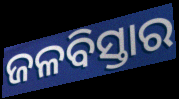
ଜଳବିସ୍ତାର